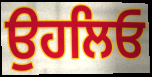
ਉਹਲਿਓ